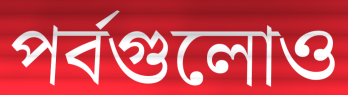
পর্বগুলোও